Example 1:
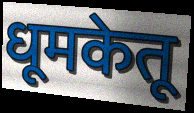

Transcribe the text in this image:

धूमकेतू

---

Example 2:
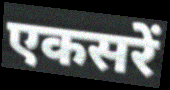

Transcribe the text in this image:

एकसरें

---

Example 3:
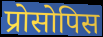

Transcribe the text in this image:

प्रोसोपिस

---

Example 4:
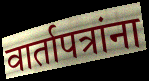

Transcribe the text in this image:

वार्तापत्रांना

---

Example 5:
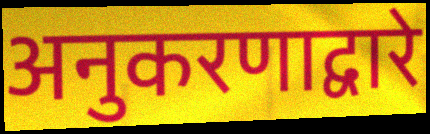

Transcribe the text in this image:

अनुकरणाद्वारे